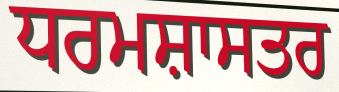
ਧਰਮਸ਼ਾਸਤਰ